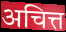
अचित्त